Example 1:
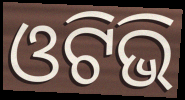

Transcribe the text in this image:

ଓଟିଭି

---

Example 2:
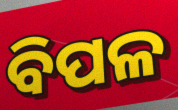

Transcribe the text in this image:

ବିପଳ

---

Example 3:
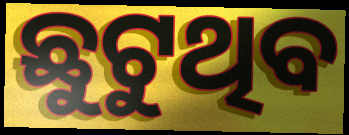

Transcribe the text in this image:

ଛୁଟୁଥିବ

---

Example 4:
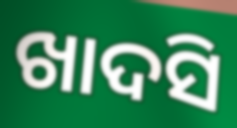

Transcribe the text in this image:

ଖାଦସି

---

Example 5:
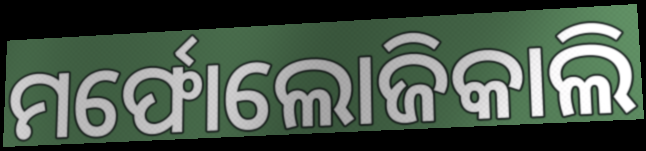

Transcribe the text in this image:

ମର୍ଫୋଲୋଜିକାଲି